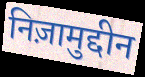
निज़ामुद्दीन